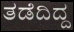
ತಡೆದಿದ್ದ